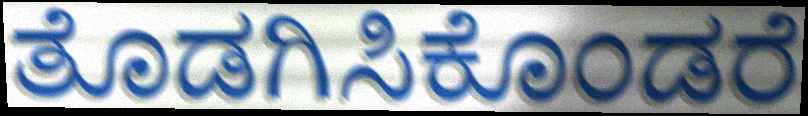
ತೊಡಗಿಸಿಕೊಂಡರೆ